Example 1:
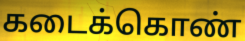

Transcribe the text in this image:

கடைக்கொண்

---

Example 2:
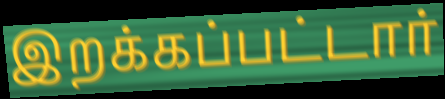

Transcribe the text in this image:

இறக்கப்பட்டார்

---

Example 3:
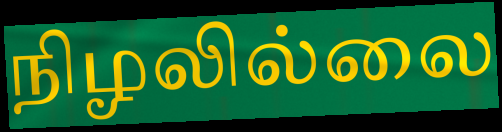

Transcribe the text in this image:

நிழலில்லை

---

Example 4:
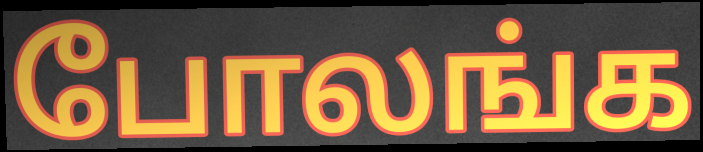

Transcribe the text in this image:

போலங்க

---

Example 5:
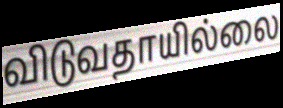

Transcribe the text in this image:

விடுவதாயில்லை